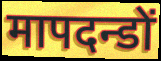
मापदन्डों